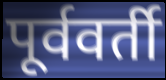
पूर्ववर्ती